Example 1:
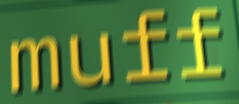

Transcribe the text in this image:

muff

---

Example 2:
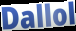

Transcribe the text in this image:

Dallol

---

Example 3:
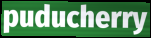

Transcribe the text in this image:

puducherry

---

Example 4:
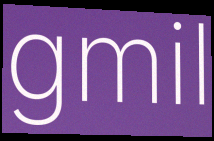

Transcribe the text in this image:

gmil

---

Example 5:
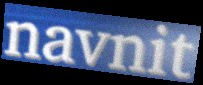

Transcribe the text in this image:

navnit